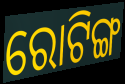
ରୋଟିଙ୍ଗ